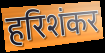
हरिशंकर